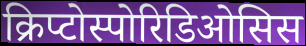
क्रिप्टोस्पोरिडिओसिस